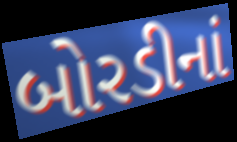
બોરડીનાં